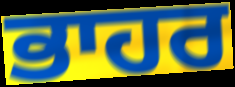
ਭਾਹਰ